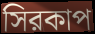
সিরকাপ